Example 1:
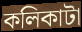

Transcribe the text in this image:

কলিকাটা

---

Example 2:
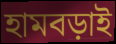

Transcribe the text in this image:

হামবড়াই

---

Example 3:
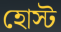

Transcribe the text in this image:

হোস্ট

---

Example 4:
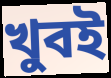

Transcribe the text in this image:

খুবই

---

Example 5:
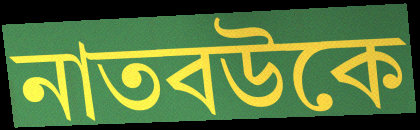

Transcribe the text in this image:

নাতবউকে